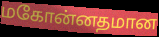
மகோன்னதமான